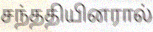
சந்ததியினரால்